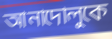
আনাদোলুকে